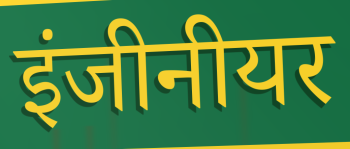
इंजीनीयर